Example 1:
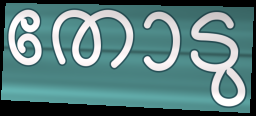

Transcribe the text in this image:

തോടു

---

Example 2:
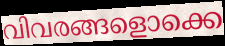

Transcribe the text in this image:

വിവരങ്ങളൊക്കെ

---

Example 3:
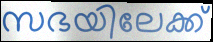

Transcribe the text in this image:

സഭയിലേക്ക്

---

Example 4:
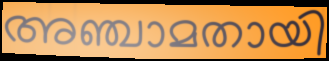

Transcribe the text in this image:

അഞ്ചാമതായി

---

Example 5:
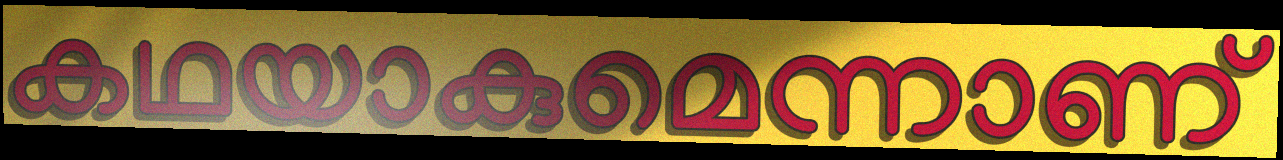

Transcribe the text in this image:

കഥയാകുമെന്നാണ്